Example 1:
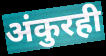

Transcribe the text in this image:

अंकुरही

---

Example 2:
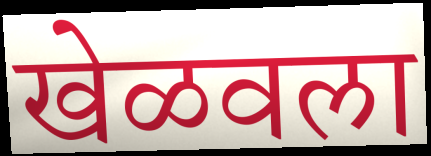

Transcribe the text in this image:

खेळवला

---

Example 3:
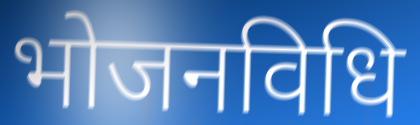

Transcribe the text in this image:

भोजनविधि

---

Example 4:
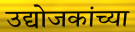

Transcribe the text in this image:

उद्योजकांच्या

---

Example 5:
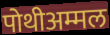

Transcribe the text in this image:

पोथीअम्मल